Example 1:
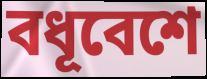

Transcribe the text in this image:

বধূবেশে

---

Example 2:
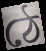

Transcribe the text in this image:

ঠে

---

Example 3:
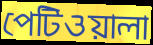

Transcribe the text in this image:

পেটিওয়ালা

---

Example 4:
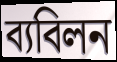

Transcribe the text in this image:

ব্যবিলন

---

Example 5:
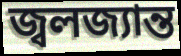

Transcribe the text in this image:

জ্বলজ্যান্ত